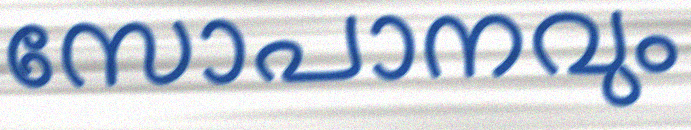
സോപാനവും